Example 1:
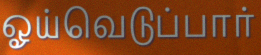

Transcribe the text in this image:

ஓய்வெடுப்பார்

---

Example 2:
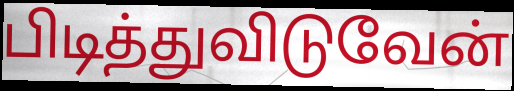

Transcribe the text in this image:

பிடித்துவிடுவேன்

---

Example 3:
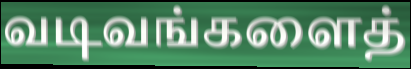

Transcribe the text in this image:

வடிவங்களைத்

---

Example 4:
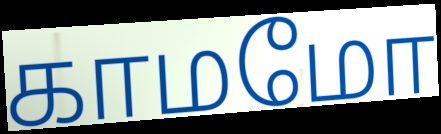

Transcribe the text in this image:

காமமோ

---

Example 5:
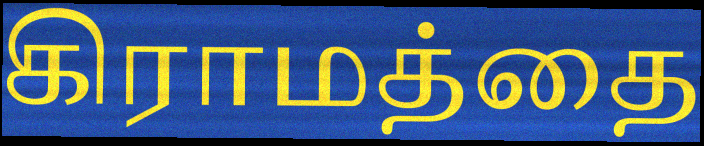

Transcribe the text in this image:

கிராமத்தை